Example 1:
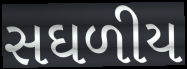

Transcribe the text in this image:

સઘળીય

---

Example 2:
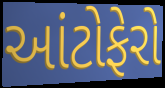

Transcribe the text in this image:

આંટોફેરો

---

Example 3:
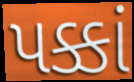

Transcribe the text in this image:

પક્કાં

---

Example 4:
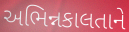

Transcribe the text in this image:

અભિન્નકાલતાને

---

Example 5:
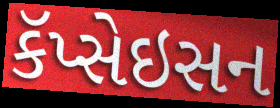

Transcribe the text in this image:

કૅપ્સેઇસન